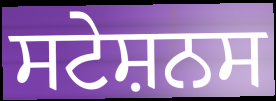
ਸਟੇਸ਼ਨਸ